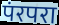
पंरपरा